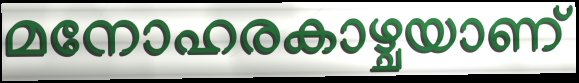
മനോഹരകാഴ്ചയാണ്